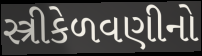
સ્ત્રીકેળવણીનો